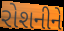
રોશનીને